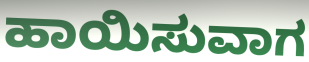
ಹಾಯಿಸುವಾಗ